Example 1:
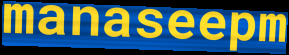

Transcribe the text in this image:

manaseepm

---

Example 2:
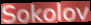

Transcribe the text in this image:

Sokolov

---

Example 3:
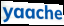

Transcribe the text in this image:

yaache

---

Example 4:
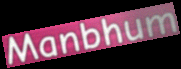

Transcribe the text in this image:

Manbhum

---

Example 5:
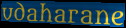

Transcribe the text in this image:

udaharane